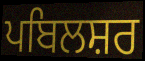
ਪਬਿਲਸ਼ਰ